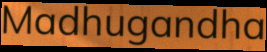
Madhugandha